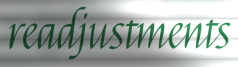
readjustments